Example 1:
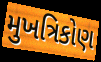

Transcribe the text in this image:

મુખત્રિકોણ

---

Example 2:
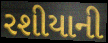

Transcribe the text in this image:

રશીયાની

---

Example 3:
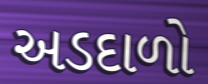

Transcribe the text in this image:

અડદાળો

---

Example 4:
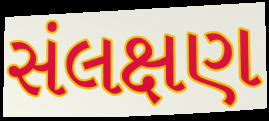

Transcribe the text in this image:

સંલક્ષણ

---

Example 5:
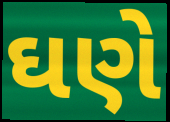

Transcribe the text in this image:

ઘણે